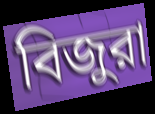
বিজুরা